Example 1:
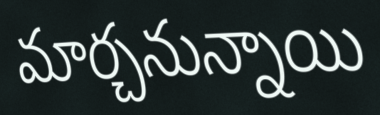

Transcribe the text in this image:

మార్చనున్నాయి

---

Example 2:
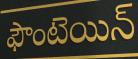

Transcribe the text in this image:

ఫౌంటెయిన్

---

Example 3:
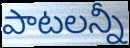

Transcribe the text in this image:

పాటలన్నీ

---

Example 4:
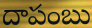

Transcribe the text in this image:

దాపంబు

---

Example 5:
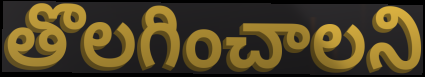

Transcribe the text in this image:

తొలగించాలని